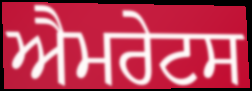
ਐਮਰੇਟਸ